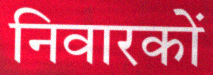
निवारकों